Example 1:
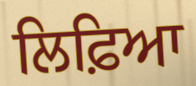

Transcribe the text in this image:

ਲਿਫ਼ਿਆ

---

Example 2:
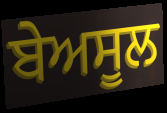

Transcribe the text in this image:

ਬੇਅਸੂਲ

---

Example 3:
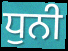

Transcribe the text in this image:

ਧੁਨੀ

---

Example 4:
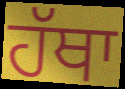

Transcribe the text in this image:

ਹੱਥਾ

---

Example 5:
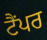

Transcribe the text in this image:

ਟੈਂਪਰ